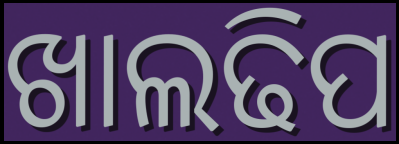
ଖାଲଢିପ